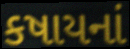
કષાયનાં